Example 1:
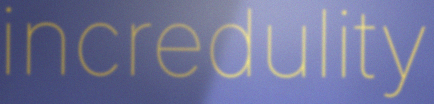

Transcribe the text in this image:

incredulity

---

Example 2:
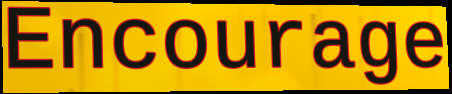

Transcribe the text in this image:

Encourage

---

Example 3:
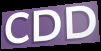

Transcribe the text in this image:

CDD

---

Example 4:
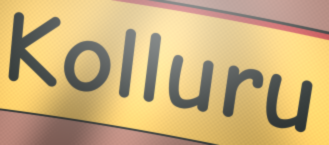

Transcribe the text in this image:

Kolluru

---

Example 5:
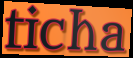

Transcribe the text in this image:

ticha